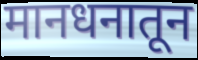
मानधनातून